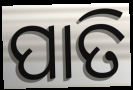
ପାତି